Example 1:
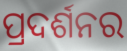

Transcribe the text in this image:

ପ୍ରଦର୍ଶନର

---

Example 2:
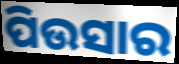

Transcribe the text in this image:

ପିଉସାର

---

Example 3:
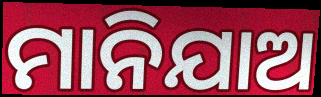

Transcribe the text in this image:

ମାନିଯାଅ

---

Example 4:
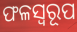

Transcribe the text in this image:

ଫଳସ୍ୱରୂପ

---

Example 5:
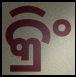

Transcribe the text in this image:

କ୍ରିଂ